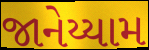
જાનેય્યામ